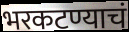
भरकटण्याचं